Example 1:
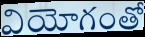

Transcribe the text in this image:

వియోగంతో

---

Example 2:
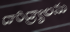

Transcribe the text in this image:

దారిద్ర్యాలను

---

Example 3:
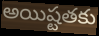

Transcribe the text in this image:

అయిష్టతకు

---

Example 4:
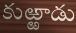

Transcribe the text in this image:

కుఱ్ఱాడు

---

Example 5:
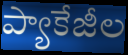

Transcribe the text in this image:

ప్యాకేజీల